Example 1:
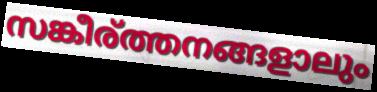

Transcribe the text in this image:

സങ്കീര്ത്തനങ്ങളാലും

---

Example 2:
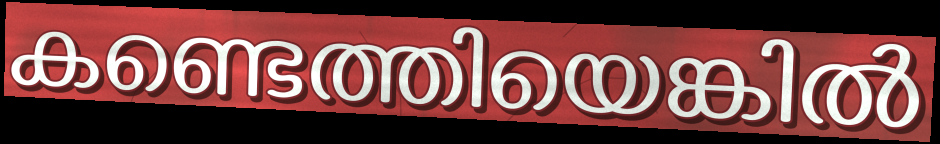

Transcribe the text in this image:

കണ്ടെത്തിയെങ്കിൽ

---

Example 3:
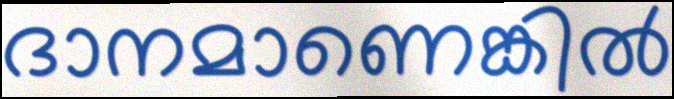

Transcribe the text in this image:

ദാനമാണെങ്കിൽ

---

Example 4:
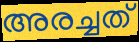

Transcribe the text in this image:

അരച്ചത്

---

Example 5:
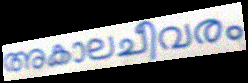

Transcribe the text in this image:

അകാലചീവരം